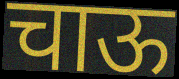
चाऊ